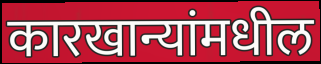
कारखान्यांमधील